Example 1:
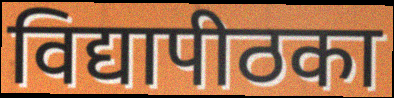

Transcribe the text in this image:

विद्यापीठका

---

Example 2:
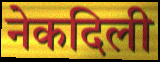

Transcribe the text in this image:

नेकदिली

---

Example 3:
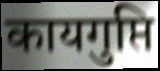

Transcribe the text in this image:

कायगुप्ति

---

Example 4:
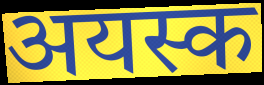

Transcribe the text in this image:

अयस्क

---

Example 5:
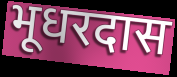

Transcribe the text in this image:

भूधरदास